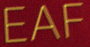
EAF